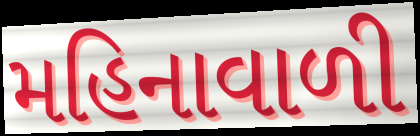
મહિનાવાળી